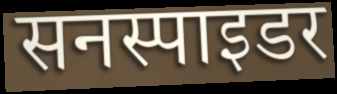
सनस्पाइडर